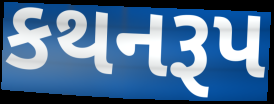
કથનરૂપ